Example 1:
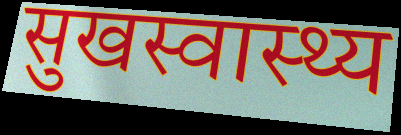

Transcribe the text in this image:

सुखस्वास्थ्य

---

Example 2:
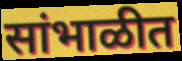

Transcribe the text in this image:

सांभाळीत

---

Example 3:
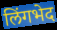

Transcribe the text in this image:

लिंगभेद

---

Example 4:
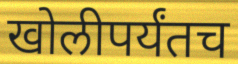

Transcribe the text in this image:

खोलीपर्यंतच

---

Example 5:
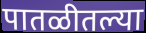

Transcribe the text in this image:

पातळीतल्या